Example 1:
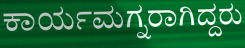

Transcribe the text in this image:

ಕಾರ್ಯಮಗ್ನರಾಗಿದ್ದರು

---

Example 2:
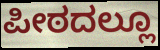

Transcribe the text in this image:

ಪೀಠದಲ್ಲೂ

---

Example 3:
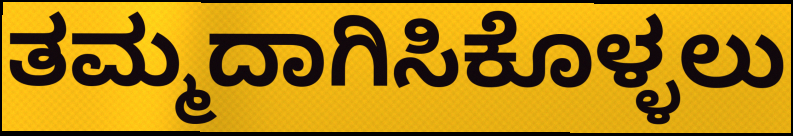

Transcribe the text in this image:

ತಮ್ಮದಾಗಿಸಿಕೊಳ್ಳಲು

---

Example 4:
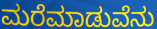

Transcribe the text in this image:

ಮರೆಮಾಡುವೆನು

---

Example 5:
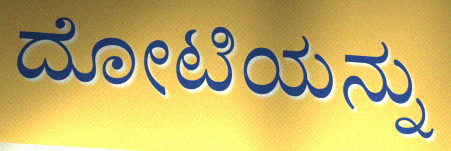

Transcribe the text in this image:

ದೋಟಿಯನ್ನು